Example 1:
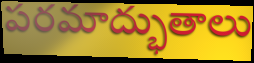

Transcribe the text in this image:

పరమాద్భుతాలు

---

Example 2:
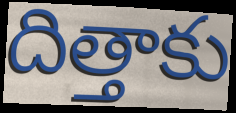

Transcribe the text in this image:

దిత్తాకు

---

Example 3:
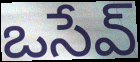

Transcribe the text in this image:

ఒసేవ్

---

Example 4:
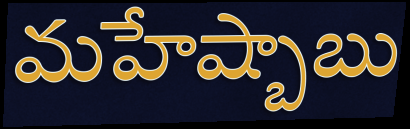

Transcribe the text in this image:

మహేష్బాబు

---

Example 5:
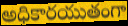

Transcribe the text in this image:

అధికారయుతంగా